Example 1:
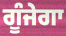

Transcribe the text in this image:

ਗੂੰਜੇਗਾ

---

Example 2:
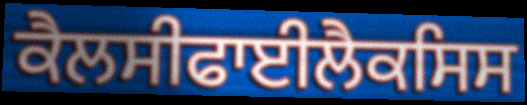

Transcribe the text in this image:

ਕੈਲਸੀਫਾਈਲੈਕਸਿਸ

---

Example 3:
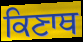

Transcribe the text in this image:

ਕਿਣਾਥ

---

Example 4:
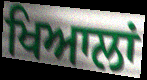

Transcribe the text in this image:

ਖਿਆਲਾਂ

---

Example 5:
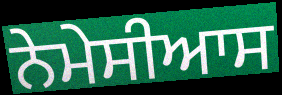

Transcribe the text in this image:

ਨੇਮੇਸੀਆਸ